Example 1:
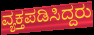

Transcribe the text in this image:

ವ್ಯಕ್ತಪಡಿಸಿದ್ದರು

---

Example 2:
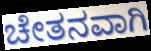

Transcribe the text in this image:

ಚೇತನವಾಗಿ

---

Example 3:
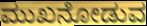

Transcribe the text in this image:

ಮುಖನೋಡುವ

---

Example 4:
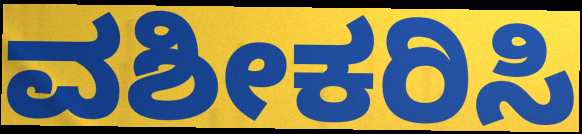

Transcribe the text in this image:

ವಶೀಕರಿಸಿ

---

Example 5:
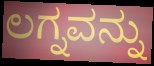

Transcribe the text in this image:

ಲಗ್ನವನ್ನು